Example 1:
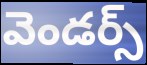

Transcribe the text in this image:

వెండర్స్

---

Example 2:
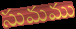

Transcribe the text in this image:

సుమము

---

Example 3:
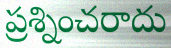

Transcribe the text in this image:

ప్రశ్నించరాదు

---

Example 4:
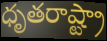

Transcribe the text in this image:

ధృతరాష్ట్రా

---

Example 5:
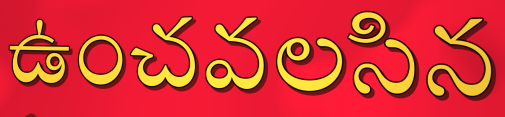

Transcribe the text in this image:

ఉంచవలసిన